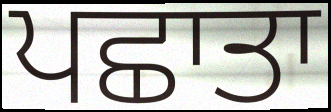
ਪਛਾਤਾ